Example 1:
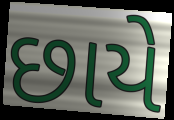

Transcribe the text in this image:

છાયે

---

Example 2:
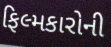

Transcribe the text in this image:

ફિલ્મકારોની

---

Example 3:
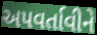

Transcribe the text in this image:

અપવર્તાવીને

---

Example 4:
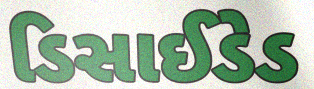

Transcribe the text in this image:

ડિસાઈડેડ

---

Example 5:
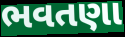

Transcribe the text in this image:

ભવતણા